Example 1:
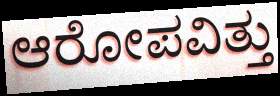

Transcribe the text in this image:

ಆರೋಪವಿತ್ತು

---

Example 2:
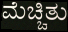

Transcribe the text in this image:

ಮೆಚ್ಚಿತು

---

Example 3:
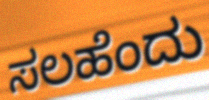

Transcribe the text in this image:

ಸಲಹೆಂದು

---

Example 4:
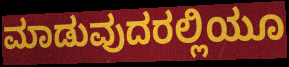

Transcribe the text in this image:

ಮಾಡುವುದರಲ್ಲಿಯೂ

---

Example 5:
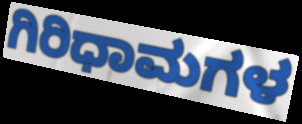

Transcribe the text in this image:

ಗಿರಿಧಾಮಗಳ